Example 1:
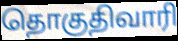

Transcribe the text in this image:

தொகுதிவாரி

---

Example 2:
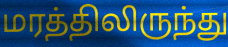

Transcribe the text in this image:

மரத்திலிருந்து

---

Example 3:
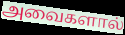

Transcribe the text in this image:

அவைகளால்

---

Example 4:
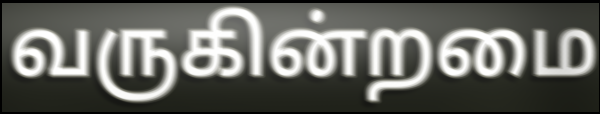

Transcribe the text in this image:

வருகின்றமை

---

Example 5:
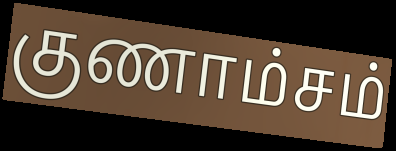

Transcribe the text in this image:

குணாம்சம்